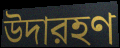
উদারহণ